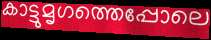
കാട്ടുമൃഗത്തെപ്പോലെ